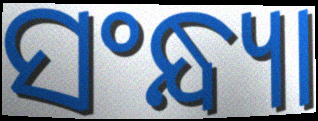
ସଂନ୍ଧ୍ଯା